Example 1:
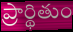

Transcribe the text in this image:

ప్రార్థితుం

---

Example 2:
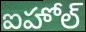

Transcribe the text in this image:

ఐహోల్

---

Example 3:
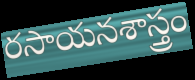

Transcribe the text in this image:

రసాయనశాస్త్రం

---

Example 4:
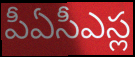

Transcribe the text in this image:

పీఏసీఎస్ల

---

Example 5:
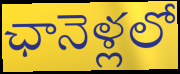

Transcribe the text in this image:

ఛానెళ్లలో